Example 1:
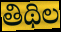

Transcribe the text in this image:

తిథిల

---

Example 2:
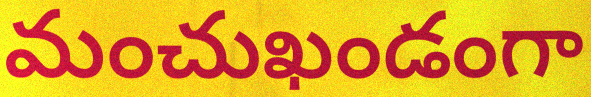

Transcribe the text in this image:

మంచుఖండంగా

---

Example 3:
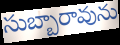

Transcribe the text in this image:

సుబ్బారావును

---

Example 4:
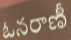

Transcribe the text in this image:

ఓనరాణీ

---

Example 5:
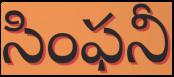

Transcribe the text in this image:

సింఫనీ